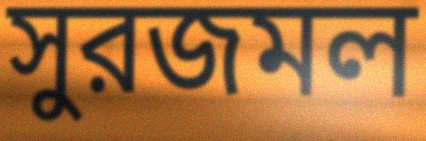
সুরজমল